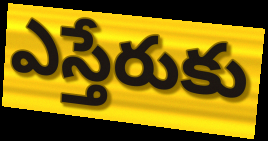
ఎస్తేరుకు